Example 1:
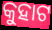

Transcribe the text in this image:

କୁହାଟ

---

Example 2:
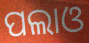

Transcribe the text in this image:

ପଲାଓ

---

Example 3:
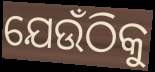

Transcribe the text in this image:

ଯେଉଁଠିକୁ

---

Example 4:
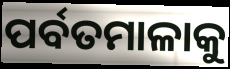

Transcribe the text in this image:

ପର୍ବତମାଳାକୁ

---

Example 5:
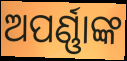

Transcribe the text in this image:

ଅପର୍ଣ୍ଣାଙ୍କ